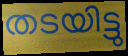
തടയിട്ടു